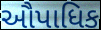
ઔપાધિક